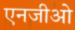
एनजीओ